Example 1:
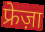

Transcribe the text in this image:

फ्रेज़ा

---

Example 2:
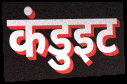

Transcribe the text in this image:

कंडुइट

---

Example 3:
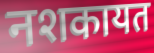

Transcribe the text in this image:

नशकायत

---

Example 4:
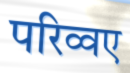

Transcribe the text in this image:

परिव्वए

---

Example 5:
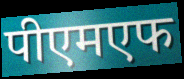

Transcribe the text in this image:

पीएमएफ